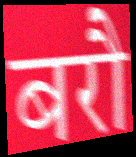
बरौ